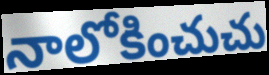
నాలోకించుచు